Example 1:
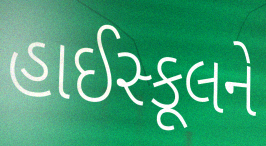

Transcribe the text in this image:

હાઈસ્કૂલને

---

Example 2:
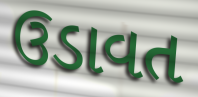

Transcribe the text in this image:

ઉડાવત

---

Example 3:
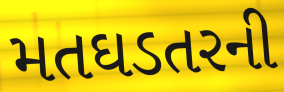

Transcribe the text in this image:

મતઘડતરની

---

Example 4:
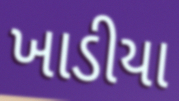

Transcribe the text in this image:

ખાડીયા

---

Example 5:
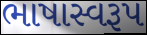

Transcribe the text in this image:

ભાષાસ્વરૂપ